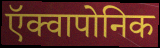
ऍक्वापोनिक